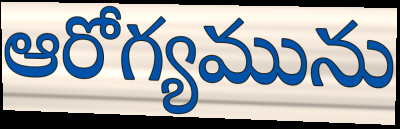
ఆరోగ్యమును